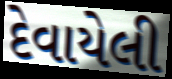
દેવાયેલી